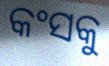
କଂସକୁ